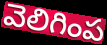
వెలిగింప